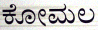
ಕೋಮಲ